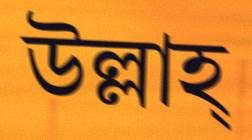
উল্লাহ্